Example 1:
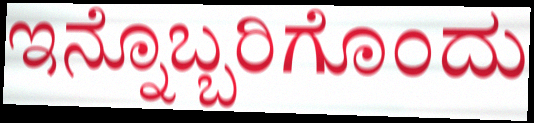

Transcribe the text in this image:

ಇನ್ನೊಬ್ಬರಿಗೊಂದು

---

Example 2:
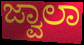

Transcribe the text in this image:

ಜ್ವಾಲಾ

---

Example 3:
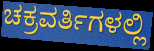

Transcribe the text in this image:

ಚಕ್ರವರ್ತಿಗಳಲ್ಲಿ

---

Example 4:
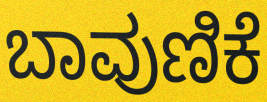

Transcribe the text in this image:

ಬಾವುಣಿಕೆ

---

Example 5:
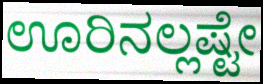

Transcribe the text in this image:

ಊರಿನಲ್ಲಷ್ಟೇ